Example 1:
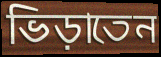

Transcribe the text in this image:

ভিড়াতেন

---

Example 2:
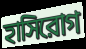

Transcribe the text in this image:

হাসিরোগ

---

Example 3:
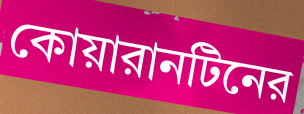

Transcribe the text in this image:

কোয়ারানটিনের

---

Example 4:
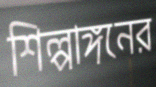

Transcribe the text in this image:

শিল্পাঙ্গনের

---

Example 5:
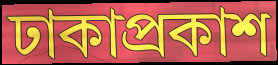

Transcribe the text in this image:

ঢাকাপ্রকাশ